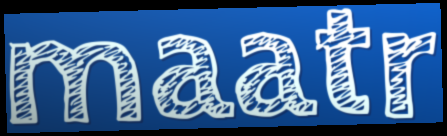
maatr